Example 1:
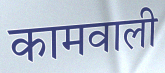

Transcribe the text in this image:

कामवाली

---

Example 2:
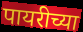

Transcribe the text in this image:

पायरीच्या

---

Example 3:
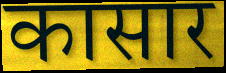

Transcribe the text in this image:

कासार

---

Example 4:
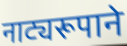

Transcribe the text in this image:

नाट्यरूपाने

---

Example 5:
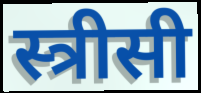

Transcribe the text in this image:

स्त्रीसी